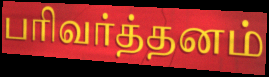
பரிவர்த்தனம்